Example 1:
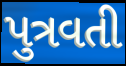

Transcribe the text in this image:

પુત્રવતી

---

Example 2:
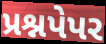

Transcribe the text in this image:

પ્રશ્નપેપર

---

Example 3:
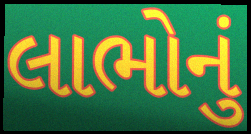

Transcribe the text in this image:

લાભોનું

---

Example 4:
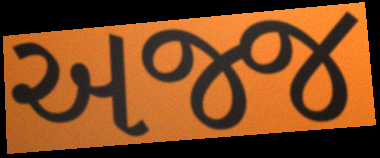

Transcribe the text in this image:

અજ્જ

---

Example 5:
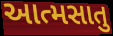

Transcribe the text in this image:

આત્મસાતુ